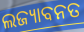
ଲଜ୍ୟାବନତ